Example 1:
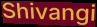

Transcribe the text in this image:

Shivangi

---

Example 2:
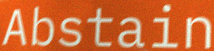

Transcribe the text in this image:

Abstain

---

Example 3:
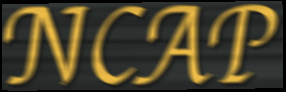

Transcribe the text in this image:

NCAP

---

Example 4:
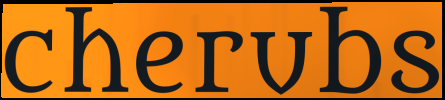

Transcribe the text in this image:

cherubs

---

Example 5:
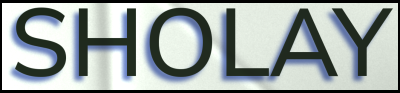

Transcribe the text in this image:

SHOLAY